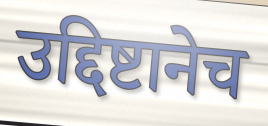
उद्दिष्टानेच